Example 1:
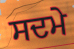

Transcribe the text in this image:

ਸਦਮੇ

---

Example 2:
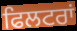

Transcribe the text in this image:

ਫਿਲਟਰਾਂ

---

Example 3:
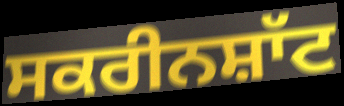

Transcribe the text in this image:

ਸਕਰੀਨਸ਼ਾੱਟ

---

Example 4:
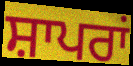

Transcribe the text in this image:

ਸ਼ਾਪਰਾਂ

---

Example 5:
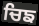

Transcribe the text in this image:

ਚਿਙ